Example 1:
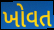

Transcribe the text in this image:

ખોવત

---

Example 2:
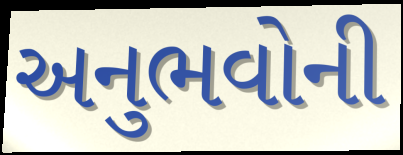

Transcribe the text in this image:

અનુભવોની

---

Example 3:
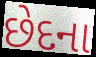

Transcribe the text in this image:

છેદના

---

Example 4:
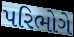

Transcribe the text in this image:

પરિભોગે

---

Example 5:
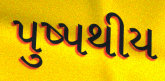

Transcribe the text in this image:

પુષ્પથીય